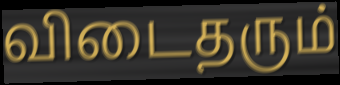
விடைதரும்